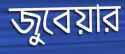
জুবেয়ার